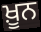
ਖ਼ੂਨ